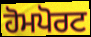
ਹੋਮਪੋਰਟ